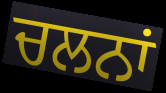
ਚਲਨਾਂ